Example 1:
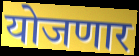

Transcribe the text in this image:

योजणार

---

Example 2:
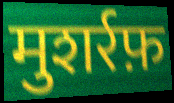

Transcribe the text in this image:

मुशर्रफ़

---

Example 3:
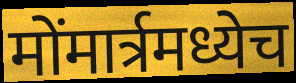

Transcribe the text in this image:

मोंमार्त्रमध्येच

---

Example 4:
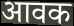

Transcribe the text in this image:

आवक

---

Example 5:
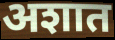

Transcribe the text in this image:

अशात